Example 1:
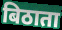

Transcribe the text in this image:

बिठाता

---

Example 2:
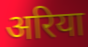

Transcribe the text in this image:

अरिया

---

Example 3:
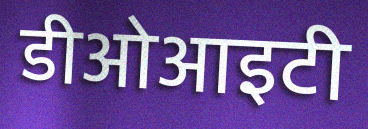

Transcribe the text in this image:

डीओआइटी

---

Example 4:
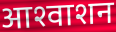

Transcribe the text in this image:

आश्वाशन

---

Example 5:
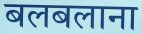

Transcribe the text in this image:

बलबलाना